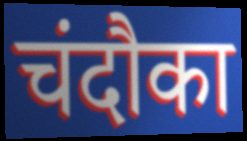
चंदौका